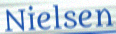
Nielsen